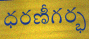
ధరణీగర్భ